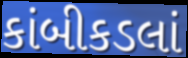
કાંબીકડલાં